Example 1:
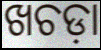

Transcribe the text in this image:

ଖଚଡ଼ା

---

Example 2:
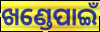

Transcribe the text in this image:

ଖଣ୍ଡେପାଇଁ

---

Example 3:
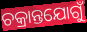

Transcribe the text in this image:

ଚକ୍ରାନ୍ତଯୋଗୁଁ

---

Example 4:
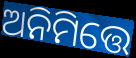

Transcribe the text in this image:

ଅନିମିତ୍ତେ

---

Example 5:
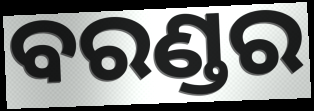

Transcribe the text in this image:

ବରଣ୍ଡର